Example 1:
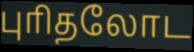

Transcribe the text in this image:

புரிதலோட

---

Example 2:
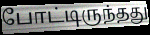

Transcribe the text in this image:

போட்டிருந்தது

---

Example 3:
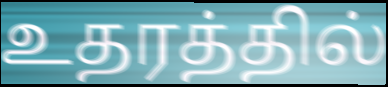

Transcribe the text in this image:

உதரத்தில்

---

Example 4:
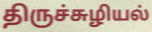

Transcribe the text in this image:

திருச்சுழியல்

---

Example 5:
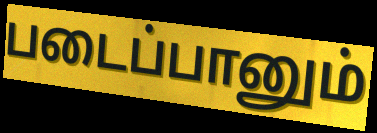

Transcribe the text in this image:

படைப்பானும்